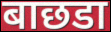
बाछडा